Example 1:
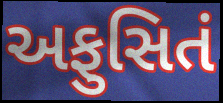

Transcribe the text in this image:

અફુસિતં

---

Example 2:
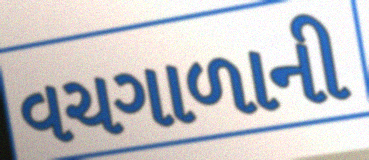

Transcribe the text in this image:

વચગાળાની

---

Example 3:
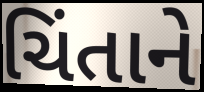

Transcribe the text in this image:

ચિંતાને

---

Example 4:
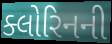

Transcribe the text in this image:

ક્લોરિનની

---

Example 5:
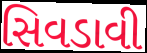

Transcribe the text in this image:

સિવડાવી